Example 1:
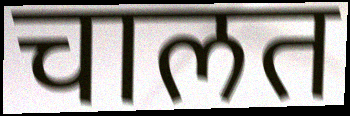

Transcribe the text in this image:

चालत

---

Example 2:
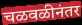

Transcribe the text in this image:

चळवळीनंतर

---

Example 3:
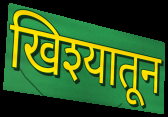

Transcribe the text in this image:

खिश्यातून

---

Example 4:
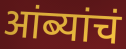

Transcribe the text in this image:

आंब्यांचं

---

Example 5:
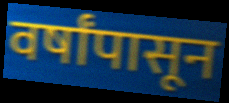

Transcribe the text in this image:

वर्षांपासून